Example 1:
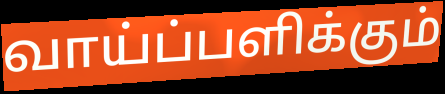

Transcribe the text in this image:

வாய்ப்பளிக்கும்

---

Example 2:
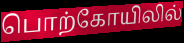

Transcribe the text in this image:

பொற்கோயிலில்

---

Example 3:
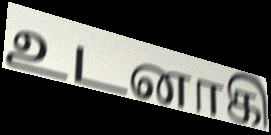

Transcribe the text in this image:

உடனாகி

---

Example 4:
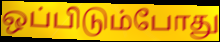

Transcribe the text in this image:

ஒப்பிடும்போது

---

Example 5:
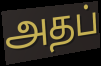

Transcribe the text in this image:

அதப்